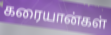
கரையான்கள்